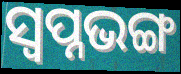
ସ୍ୱପ୍ନଭଙ୍ଗ